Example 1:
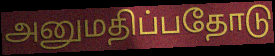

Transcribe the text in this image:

அனுமதிப்பதோடு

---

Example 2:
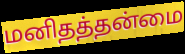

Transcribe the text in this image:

மனிதத்தன்மை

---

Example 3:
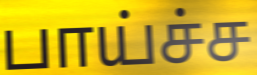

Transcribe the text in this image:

பாய்ச்ச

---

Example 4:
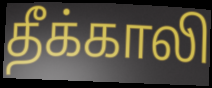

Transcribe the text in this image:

தீக்காலி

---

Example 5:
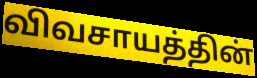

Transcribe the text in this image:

விவசாயத்தின்